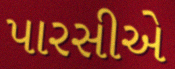
પારસીએ